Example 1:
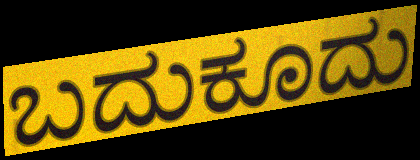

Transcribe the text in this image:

ಬದುಕೂದು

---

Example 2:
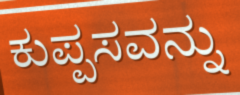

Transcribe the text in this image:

ಕುಪ್ಪಸವನ್ನು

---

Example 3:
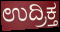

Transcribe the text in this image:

ಉದ್ರಿಕ್ತ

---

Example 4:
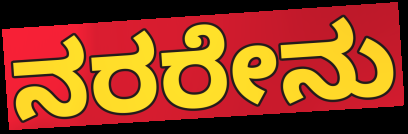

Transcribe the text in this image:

ನರರೇನು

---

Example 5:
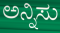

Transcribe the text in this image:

ಅನ್ನಿಸು